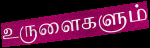
உருளைகளும்